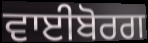
ਵਾਈਬੋਰਗ